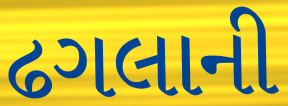
ઢગલાની